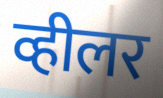
व्हीलर